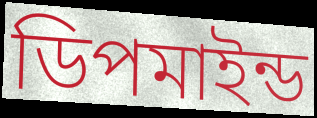
ডিপমাইন্ড